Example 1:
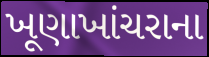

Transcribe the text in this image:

ખૂણાખાંચરાના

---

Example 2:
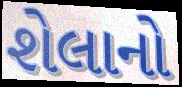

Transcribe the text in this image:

શેલાનો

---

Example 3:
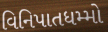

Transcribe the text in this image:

વિનિપાતધમ્મો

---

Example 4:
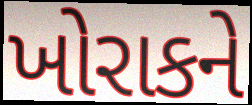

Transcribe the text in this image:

ખોરાકને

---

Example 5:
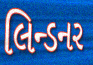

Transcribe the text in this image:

લિન્ડનર